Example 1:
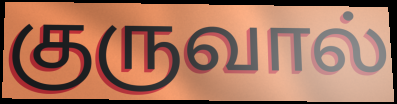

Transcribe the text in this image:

குருவால்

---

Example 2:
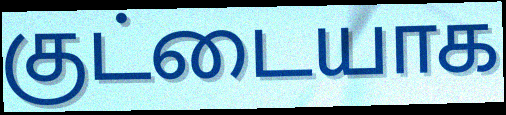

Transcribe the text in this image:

குட்டையாக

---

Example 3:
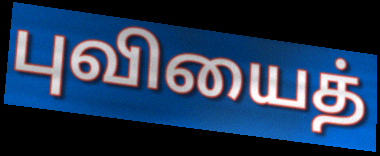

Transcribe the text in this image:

புவியைத்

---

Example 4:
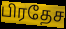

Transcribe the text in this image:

பிரதேச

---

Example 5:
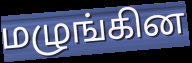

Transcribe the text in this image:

மழுங்கின